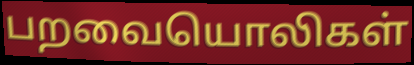
பறவையொலிகள்